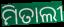
ମିତାଲୀ